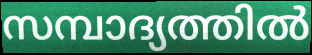
സമ്പാദ്യത്തിൽ